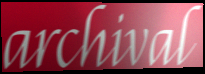
archival